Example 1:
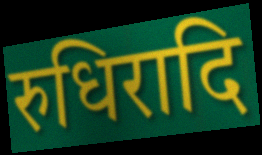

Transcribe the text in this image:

रुधिरादि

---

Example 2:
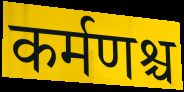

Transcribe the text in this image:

कर्मणश्च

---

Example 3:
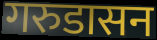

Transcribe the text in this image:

गरुडासन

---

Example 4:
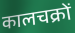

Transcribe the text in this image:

कालचक्रों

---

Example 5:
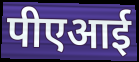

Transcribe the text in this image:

पीएआई